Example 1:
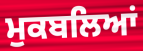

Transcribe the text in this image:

ਮੁਕਬਲਿਆਂ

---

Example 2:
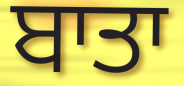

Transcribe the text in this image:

ਬਾਤਾ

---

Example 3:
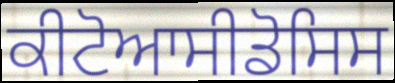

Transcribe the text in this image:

ਕੀਟੋਆਸੀਡੋਸਿਸ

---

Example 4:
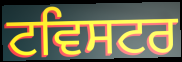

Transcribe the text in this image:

ਟਵਿਸਟਰ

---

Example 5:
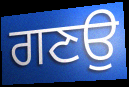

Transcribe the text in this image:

ਗਣਉ